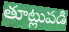
తూట్లుపడి